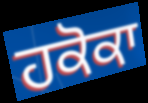
ਹਕੋਕਾ